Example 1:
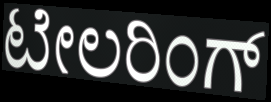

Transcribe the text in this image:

ಟೇಲರಿಂಗ್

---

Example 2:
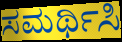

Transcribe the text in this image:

ಸಮರ್ಥಿಸಿ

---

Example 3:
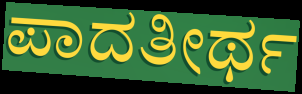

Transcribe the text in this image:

ಪಾದತೀರ್ಥ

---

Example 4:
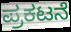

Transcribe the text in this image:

ಪ್ರಕಟನೆ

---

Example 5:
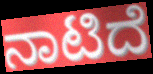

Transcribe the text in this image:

ನಾಟಿದೆ